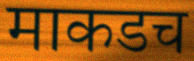
माकडच